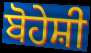
ਬੋਹੇਸ਼ੀ